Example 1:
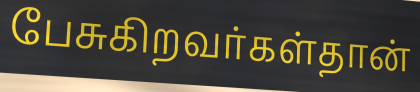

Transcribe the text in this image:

பேசுகிறவர்கள்தான்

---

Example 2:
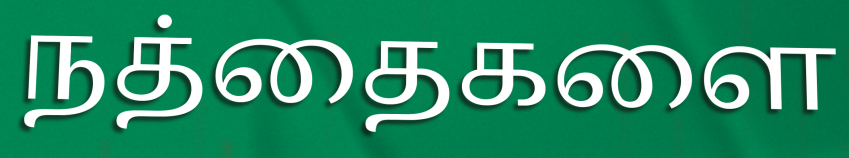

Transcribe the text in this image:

நத்தைகளை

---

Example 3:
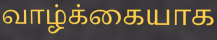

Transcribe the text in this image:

வாழ்க்கையாக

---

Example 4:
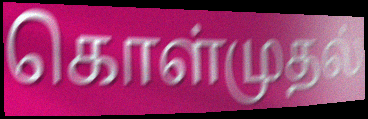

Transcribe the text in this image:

கொள்முதல்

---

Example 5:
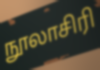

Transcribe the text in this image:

நூலாசிரி